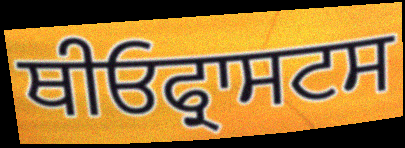
ਥੀਓਫ੍ਰਾਸਟਸ